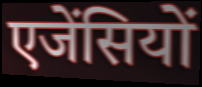
एजेंसियों